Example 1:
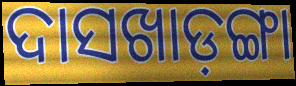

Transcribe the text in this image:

ଦାସଖାଡ଼ଙ୍ଗା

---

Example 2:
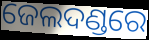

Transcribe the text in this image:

ଜେଲଦଣ୍ଡରେ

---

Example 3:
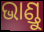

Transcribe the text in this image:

ଭାଣ୍ଡୁ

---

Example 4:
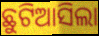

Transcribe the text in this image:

ଛୁଟିଆସିଲା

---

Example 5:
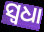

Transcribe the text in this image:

ସ୍ୱଧା